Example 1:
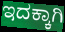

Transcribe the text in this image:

ಇದಕ್ಕಾಗಿ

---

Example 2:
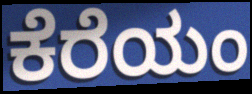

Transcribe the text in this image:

ಕೆರೆಯಂ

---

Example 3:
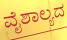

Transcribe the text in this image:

ವೈಶಾಲ್ಯದ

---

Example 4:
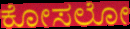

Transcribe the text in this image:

ಕೋಸಲೋ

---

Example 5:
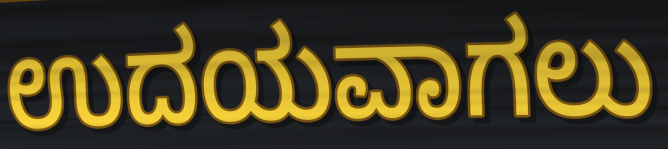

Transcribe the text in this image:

ಉದಯವಾಗಲು